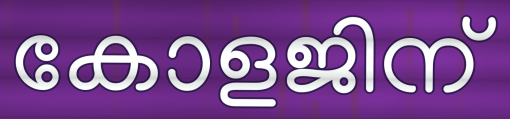
കോളജിന്